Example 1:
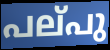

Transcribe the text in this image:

പല്‌പു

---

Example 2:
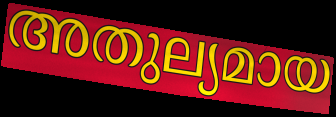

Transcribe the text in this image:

അതുല്യമായ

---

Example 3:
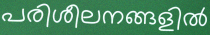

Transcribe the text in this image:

പരിശീലനങ്ങളിൽ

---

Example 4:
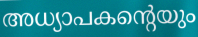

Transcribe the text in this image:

അധ്യാപകന്റെയും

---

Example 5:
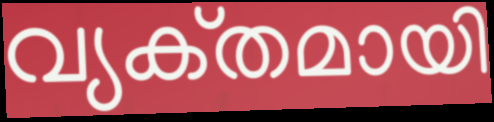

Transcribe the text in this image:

വ്യക്‌തമായി